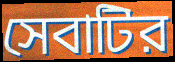
সেবাটির